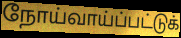
நோய்வாய்ப்பட்டுக்